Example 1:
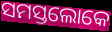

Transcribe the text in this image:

ସମସ୍ତଲୋକେ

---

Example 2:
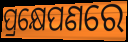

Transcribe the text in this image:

ପ୍ରକ୍ଷେପଣରେ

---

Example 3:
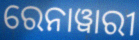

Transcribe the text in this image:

ରେନାୱାରୀ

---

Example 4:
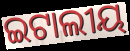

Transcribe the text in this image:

ଇଟାଲୀୟ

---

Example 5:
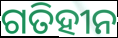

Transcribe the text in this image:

ଗତିହୀନ